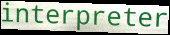
interpreter